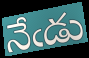
నేఁడు